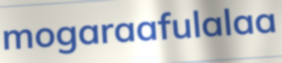
mogaraafulalaa